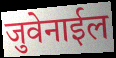
जुवेनाईल